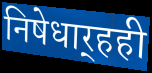
निषेधार्हही